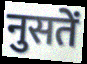
नुसतें